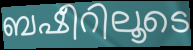
ബഷീറിലൂടെ